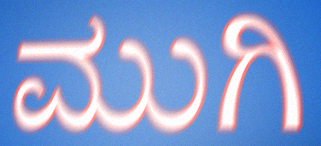
ಮುಗಿ